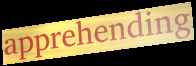
apprehending